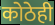
कोठेही